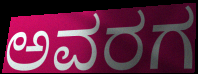
ಅವರಗ